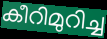
കീറിമുറിച്ച